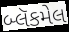
બ્લૅકમેલ